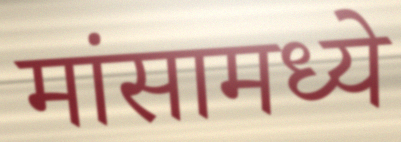
मांसामध्ये